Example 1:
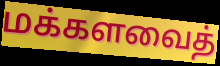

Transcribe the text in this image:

மக்களவைத்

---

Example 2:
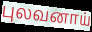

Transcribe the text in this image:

புலவனாய்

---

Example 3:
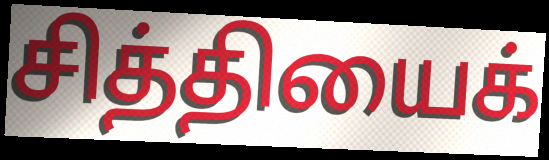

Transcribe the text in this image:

சித்தியைக்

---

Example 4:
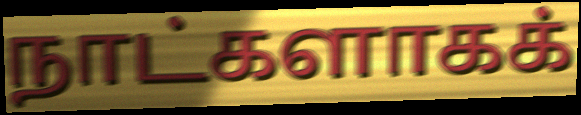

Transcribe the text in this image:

நாட்களாகக்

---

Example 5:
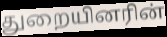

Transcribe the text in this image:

துறையினரின்